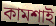
কামশাই